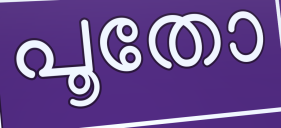
പൂതോ